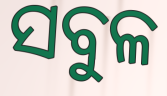
ସବୁଳ